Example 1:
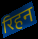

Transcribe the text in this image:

रिहन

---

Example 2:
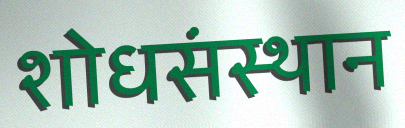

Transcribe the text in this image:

शोधसंस्थान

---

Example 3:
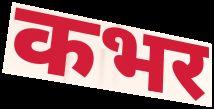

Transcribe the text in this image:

कभर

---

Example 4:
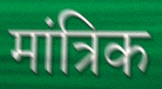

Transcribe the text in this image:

मांत्रिक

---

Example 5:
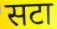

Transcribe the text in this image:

सटा